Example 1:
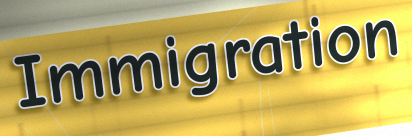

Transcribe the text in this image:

Immigration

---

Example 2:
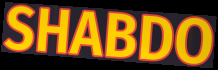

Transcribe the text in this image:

SHABDO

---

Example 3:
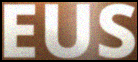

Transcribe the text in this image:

EUS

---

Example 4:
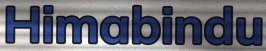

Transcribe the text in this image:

Himabindu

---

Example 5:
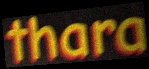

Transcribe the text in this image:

thara